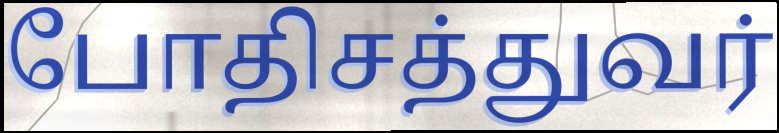
போதிசத்துவர்